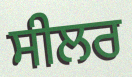
ਸੀਲਰ